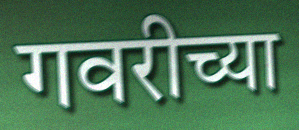
गवरीच्या